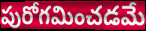
పురోగమించడమే